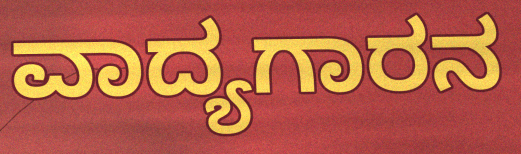
ವಾದ್ಯಗಾರನ